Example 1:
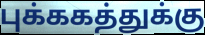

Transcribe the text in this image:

புக்ககத்துக்கு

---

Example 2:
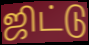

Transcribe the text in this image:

ஜிட்டு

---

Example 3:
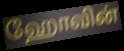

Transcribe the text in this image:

ஹோவின்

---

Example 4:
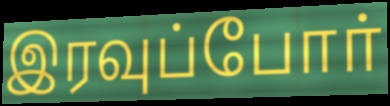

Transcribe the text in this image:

இரவுப்போர்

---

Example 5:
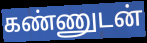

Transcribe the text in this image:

கண்ணுடன்